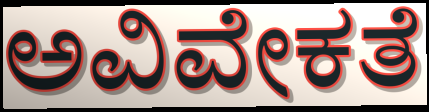
ಅವಿವೇಕತೆ